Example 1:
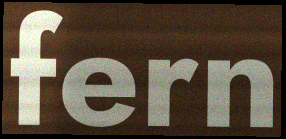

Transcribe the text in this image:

fern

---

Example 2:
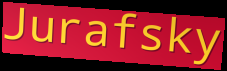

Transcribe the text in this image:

Jurafsky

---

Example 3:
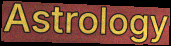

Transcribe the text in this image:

Astrology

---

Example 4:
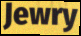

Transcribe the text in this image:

Jewry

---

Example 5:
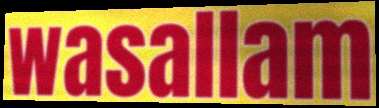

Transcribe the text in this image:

wasallam